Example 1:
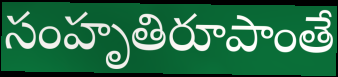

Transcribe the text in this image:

సంహృతిరూపాంతే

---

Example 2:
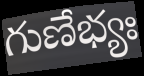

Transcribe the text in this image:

గుణేభ్యః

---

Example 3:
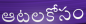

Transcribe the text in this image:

ఆటలకోసం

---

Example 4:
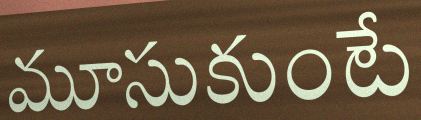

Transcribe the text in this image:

మూసుకుంటే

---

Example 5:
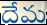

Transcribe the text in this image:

దేమ